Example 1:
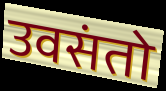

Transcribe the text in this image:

उवसंतो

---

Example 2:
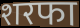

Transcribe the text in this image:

शरफा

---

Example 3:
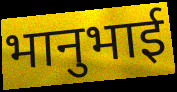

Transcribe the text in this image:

भानुभाई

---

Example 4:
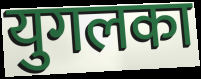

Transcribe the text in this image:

युगलका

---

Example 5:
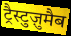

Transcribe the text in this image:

ट्रैस्टुज़ुमैब